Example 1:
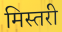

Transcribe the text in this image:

मिस्तरी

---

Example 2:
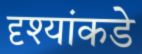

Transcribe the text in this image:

दृश्यांकडे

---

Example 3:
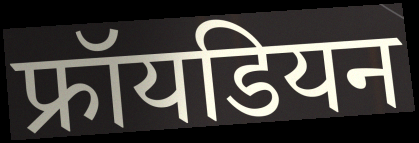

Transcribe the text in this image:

फ्रॉयडियन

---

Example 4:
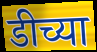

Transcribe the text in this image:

डीच्या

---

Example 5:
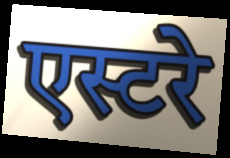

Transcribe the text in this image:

एस्टरे